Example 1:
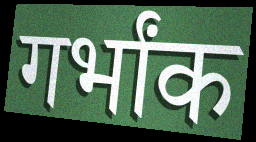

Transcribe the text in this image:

गर्भांक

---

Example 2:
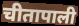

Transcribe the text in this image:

चीतापाली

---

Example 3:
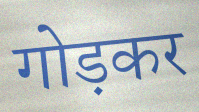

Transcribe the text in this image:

गोड़कर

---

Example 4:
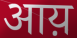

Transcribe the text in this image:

आय़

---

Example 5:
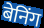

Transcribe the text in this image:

बेनिंग